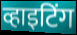
व्हाइटिंग